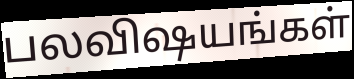
பலவிஷயங்கள்